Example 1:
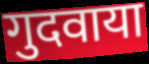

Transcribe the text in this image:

गुदवाया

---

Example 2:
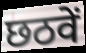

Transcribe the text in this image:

छठवें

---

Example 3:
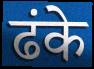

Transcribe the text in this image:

ढंके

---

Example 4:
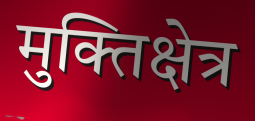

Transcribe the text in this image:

मुक्तिक्षेत्र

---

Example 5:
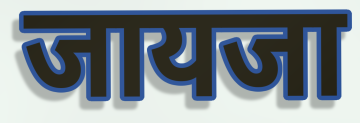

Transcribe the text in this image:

जायजा